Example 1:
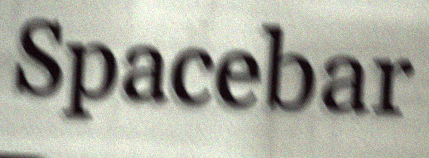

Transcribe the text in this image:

Spacebar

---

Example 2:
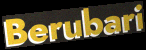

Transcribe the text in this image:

Berubari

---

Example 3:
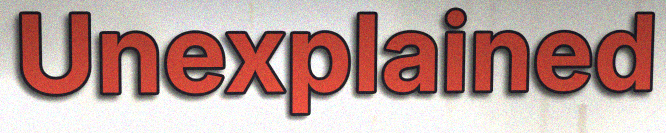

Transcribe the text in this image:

Unexplained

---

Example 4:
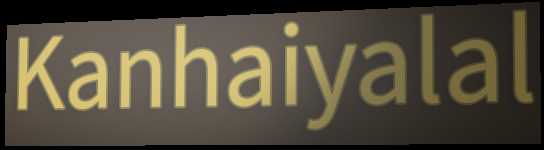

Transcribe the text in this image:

Kanhaiyalal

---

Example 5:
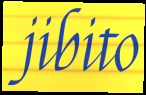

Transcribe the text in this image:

jibito